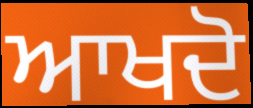
ਆਖਦੋ